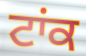
ਟਾਂਕ